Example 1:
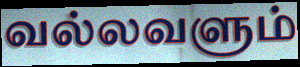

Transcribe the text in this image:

வல்லவளும்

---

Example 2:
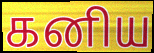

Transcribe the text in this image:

கனிய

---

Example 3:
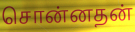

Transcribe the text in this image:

சொன்னதன்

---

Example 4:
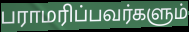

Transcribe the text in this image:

பராமரிப்பவர்களும்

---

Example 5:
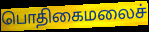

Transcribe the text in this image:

பொதிகைமலைச்